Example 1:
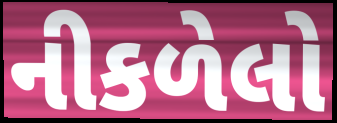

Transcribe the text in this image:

નીકળેલો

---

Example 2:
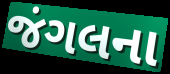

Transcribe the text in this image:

જંગલના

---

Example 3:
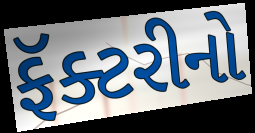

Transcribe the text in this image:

ફૅક્ટરીનો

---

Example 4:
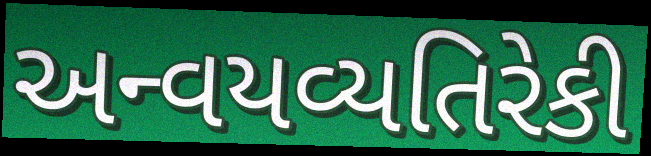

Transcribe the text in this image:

અન્વયવ્યતિરેકી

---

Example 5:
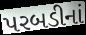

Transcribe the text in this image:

પરબડીનાં